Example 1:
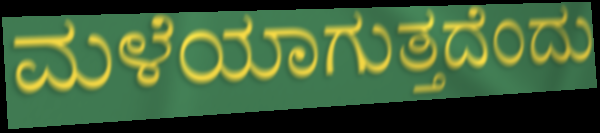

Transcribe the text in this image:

ಮಳೆಯಾಗುತ್ತದೆಂದು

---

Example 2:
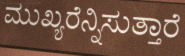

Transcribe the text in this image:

ಮುಖ್ಯರೆನ್ನಿಸುತ್ತಾರೆ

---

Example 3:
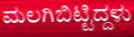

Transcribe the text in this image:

ಮಲಗಿಬಿಟ್ಟಿದ್ದಳು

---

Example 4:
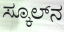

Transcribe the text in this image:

ಸ್ಕೂಲ್‌ನ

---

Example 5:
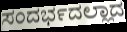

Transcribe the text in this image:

ಸಂದರ್ಭದಲ್ಲಾದ